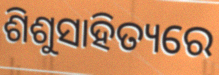
ଶିଶୁସାହିତ୍ୟରେ